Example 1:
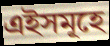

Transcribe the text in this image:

এইসমূহে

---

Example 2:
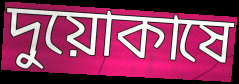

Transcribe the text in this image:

দুয়োকাষে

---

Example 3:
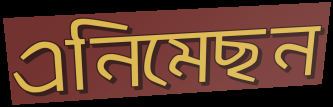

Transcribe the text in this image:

এনিমেছন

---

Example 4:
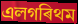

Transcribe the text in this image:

এলগৰিথম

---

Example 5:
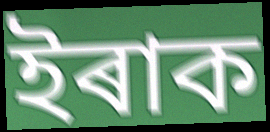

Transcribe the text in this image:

ইৰাক